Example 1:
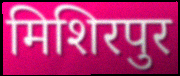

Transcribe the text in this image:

मिशिरपुर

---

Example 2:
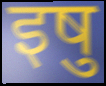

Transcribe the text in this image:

इषु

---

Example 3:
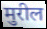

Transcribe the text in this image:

मुरील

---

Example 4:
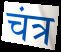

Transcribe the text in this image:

चंत्र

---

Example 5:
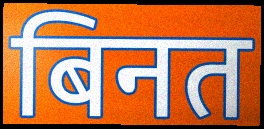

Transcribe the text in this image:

बिनत